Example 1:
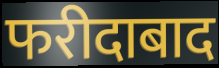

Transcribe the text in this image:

फरीदाबाद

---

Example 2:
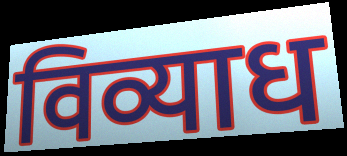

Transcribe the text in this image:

विव्याध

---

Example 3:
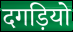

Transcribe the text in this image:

दगड़ियो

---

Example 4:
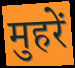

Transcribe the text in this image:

मुहरें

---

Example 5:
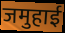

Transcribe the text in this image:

जमुहाई